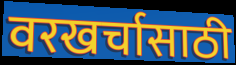
वरखर्चासाठी